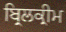
ਬ੍ਰਿਲਕ੍ਰੀਮ